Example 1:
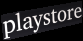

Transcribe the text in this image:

playstore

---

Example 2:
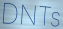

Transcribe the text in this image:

DNTs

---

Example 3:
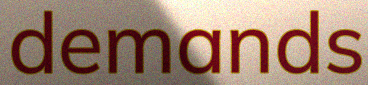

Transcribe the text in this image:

demands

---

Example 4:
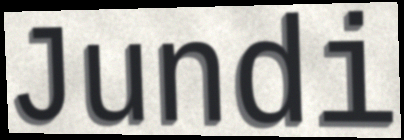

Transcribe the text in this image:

Jundi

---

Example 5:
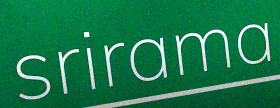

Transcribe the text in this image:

srirama